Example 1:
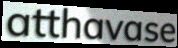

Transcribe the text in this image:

atthavase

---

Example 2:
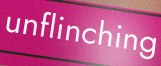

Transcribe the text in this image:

unflinching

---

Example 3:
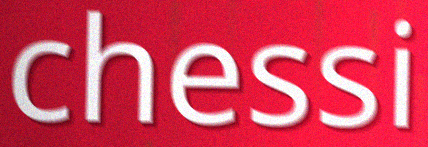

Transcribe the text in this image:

chessi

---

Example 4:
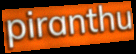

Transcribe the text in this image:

piranthu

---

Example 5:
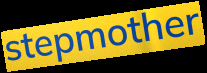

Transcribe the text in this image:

stepmother